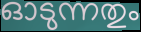
ഓടുന്നതും